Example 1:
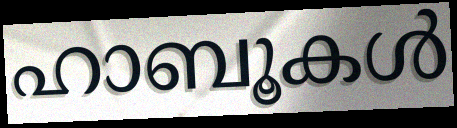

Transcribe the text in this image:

ഹാബൂകൾ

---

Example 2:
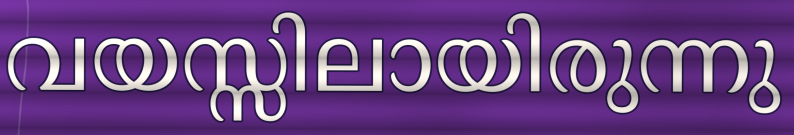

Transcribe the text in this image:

വയസ്സിലായിരുന്നു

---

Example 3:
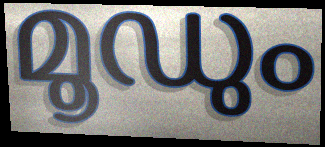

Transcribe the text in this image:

മൂഡും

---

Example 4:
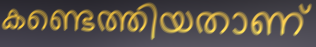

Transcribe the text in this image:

കണ്ടെത്തിയതാണ്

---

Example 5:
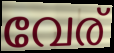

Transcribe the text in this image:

വേര്